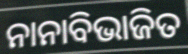
ନାନାବିଭାଜିତ